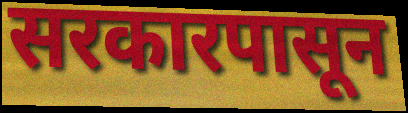
सरकारपासून